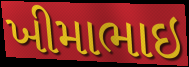
ખીમાભાઇ